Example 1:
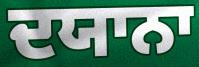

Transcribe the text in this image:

ਦਯਾਨਾ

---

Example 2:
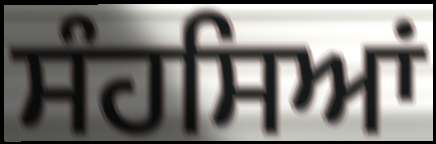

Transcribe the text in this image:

ਸੰਹਸਿਆਂ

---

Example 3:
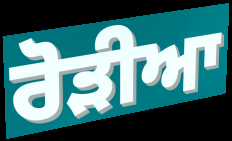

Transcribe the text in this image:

ਰੋੜੀਆ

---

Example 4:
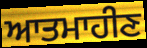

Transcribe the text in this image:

ਆਤਮਾਹੀਣ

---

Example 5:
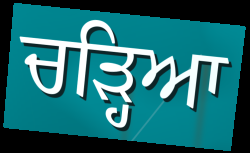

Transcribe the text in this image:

ਚਡ਼੍ਹਿਆ